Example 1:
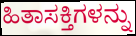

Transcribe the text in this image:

ಹಿತಾಸಕ್ತಿಗಳನ್ನು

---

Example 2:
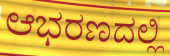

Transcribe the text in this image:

ಆಭರಣದಲ್ಲಿ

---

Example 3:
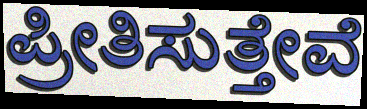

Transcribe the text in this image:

ಪ್ರೀತಿಸುತ್ತೇವೆ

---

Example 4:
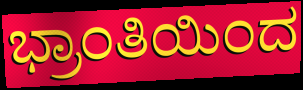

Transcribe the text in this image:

ಭ್ರಾಂತಿಯಿಂದ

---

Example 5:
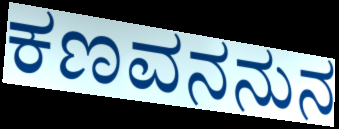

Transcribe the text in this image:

ಕಣವನನುನ